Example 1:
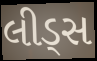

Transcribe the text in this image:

લીડ્સ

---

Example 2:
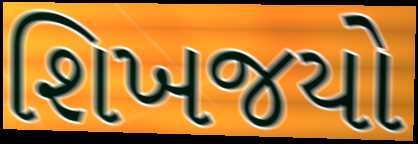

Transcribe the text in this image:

શિખજયો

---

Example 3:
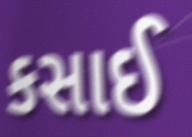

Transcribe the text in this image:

કસાઈ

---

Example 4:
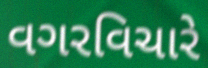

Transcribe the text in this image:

વગરવિચારે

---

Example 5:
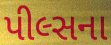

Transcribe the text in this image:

પીલ્સના